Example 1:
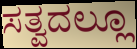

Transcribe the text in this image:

ಸತ್ವದಲ್ಲೂ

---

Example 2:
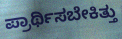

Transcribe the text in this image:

ಪ್ರಾರ್ಥಿಸಬೇಕಿತ್ತು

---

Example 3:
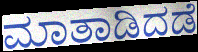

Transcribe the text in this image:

ಮಾತಾಡಿದಡೆ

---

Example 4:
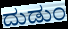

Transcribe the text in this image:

ದುಡುಂ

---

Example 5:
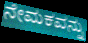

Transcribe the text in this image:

ನೇಮಕವನ್ನು